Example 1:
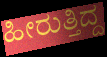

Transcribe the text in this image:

ಹೀರುತ್ತಿದ್ದ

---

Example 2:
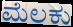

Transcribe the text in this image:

ಮೆಲಕು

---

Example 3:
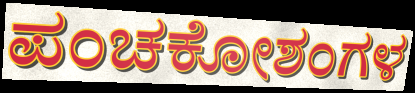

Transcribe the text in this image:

ಪಂಚಕೋಶಂಗಳ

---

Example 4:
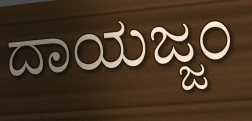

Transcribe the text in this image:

ದಾಯಜ್ಜಂ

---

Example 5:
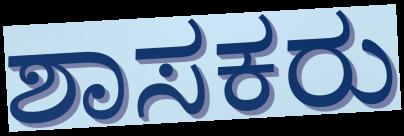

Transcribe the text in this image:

ಶಾಸಕರು